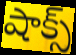
షాక్స్